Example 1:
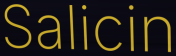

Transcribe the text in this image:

Salicin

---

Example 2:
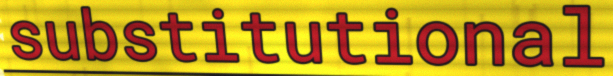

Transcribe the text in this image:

substitutional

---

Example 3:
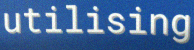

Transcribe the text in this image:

utilising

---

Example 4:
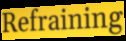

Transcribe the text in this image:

Refraining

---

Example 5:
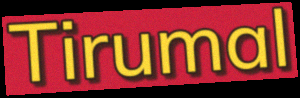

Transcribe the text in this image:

Tirumal